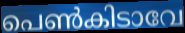
പെൺകിടാവേ